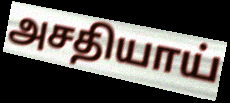
அசதியாய்